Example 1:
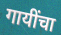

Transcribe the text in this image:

गायींचा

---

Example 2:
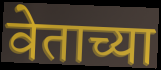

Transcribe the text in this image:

वेताच्या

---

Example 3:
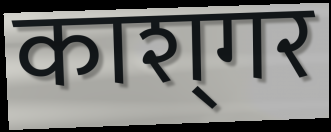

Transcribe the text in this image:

काश्गर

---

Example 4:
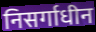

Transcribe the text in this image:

निसर्गाधीन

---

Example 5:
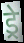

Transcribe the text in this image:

ड्रे